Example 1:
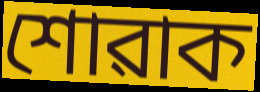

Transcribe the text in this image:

শোৱাক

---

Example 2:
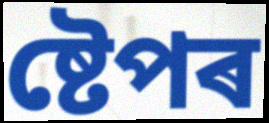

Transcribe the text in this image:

ষ্টেপৰ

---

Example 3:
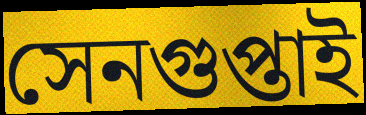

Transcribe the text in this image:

সেনগুপ্তাই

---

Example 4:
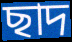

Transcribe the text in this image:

ছাদ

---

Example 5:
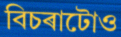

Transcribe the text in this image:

বিচৰাটোও